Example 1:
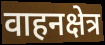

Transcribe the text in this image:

वाहनक्षेत्र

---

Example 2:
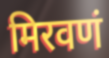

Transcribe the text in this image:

मिरवणं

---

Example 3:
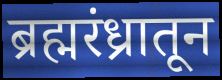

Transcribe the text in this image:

ब्रह्मरंध्रातून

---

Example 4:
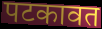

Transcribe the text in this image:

पटकावत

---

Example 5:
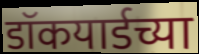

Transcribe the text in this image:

डॉकयार्डच्या